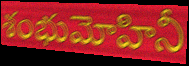
శంభుమోహినీ